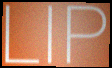
LIP